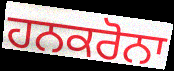
ਹਨਕਰੋਨਾ